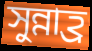
সুন্নাহ্র